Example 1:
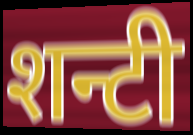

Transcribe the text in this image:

शन्टी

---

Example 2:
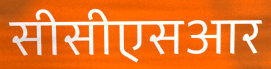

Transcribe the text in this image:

सीसीएसआर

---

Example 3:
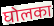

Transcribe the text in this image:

घोलका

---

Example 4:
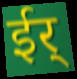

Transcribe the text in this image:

ईर्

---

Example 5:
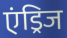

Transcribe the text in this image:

एंड्रिज